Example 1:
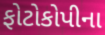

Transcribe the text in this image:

ફોટોકોપીના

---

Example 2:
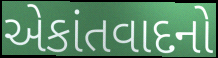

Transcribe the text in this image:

એકાંતવાદનો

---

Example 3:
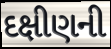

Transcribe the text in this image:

દક્ષીણની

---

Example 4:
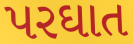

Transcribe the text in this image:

પરઘાત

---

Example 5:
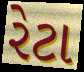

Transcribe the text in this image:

રેટા